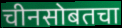
चीनसोबतचा